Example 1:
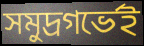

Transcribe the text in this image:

সমুদ্রগর্ভেই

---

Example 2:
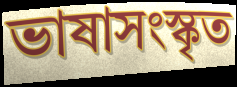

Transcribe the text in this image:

ভাষাসংস্কৃত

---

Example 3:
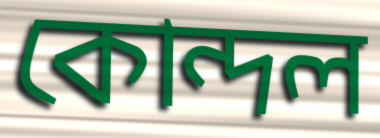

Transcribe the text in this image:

কোন্দল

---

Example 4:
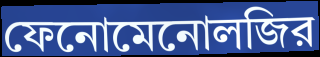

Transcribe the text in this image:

ফেনোমেনোলজির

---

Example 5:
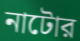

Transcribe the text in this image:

নাটোর